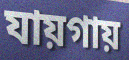
যায়গায়